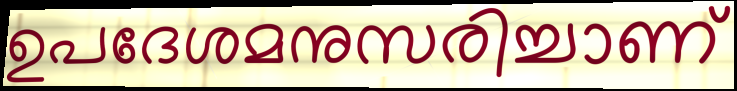
ഉപദേശമനുസരിച്ചാണ്